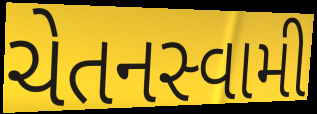
ચેતનસ્વામી